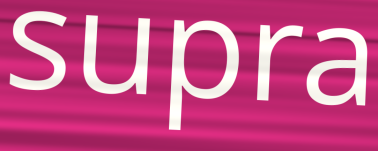
supra